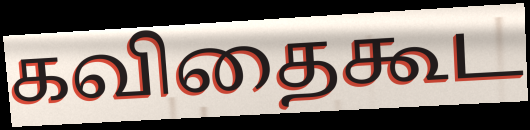
கவிதைகூட